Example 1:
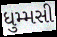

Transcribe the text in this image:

ધુમ્મસી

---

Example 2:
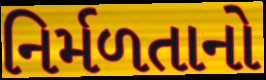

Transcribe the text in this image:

નિર્મળતાનો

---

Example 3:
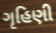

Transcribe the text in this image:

ગૃહિણી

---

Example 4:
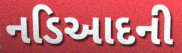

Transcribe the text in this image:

નડિઆદની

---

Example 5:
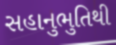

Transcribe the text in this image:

સહાનુભુતિથી